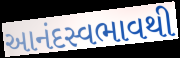
આનંદસ્વભાવથી